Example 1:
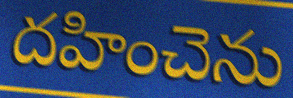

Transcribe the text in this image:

దహించెను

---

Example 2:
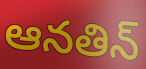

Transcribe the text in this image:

ఆనతిన్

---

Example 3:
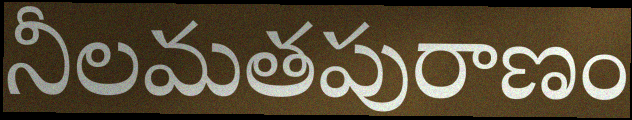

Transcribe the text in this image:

నీలమతపురాణం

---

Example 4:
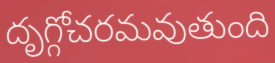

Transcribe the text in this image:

దృగ్గోచరమవుతుంది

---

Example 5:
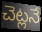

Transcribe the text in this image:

చెట్లనే